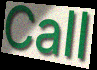
Call